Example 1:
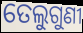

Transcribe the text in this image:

ତେଲୁଗୁଣୀ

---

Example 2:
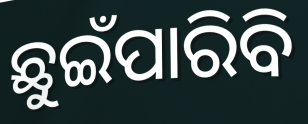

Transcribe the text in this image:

ଛୁଇଁପାରିବି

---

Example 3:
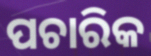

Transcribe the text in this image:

ପଚାରିକ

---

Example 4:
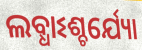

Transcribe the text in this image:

ଲବ୍ଧାଽଶ୍ଚର୍ଯ୍ୟୋ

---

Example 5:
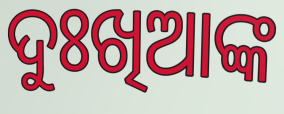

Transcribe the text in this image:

ଦୁଃଖିଆଙ୍କ